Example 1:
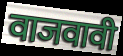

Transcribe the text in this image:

वाजवावी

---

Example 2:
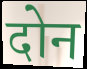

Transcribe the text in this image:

दोन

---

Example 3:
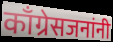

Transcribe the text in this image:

काँग्रेसजनांनी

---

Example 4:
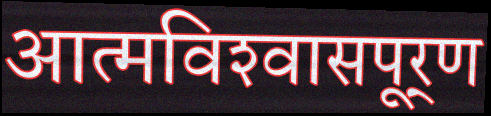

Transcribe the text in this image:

आत्मविश्वासपूर्ण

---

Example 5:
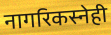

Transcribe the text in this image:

नागरिकस्नेही